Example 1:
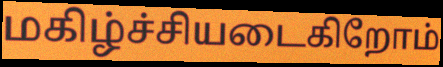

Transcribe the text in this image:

மகிழ்ச்சியடைகிறோம்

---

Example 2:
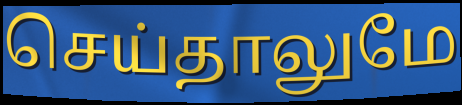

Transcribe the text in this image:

செய்தாலுமே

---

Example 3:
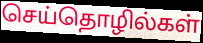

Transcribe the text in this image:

செய்தொழில்கள்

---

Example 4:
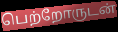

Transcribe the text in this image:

பெற்றோருடன்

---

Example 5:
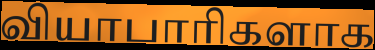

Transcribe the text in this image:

வியாபாரிகளாக